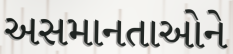
અસમાનતાઓને